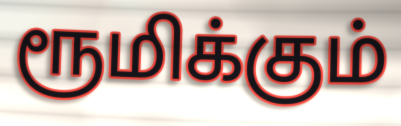
ரூமிக்கும்